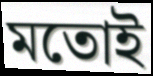
মতোই